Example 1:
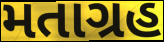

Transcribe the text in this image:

મતાગ્રહ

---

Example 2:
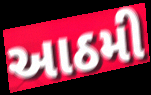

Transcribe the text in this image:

આઠમી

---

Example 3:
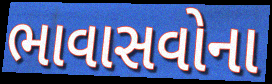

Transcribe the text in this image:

ભાવાસવોના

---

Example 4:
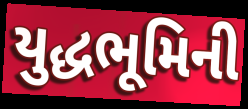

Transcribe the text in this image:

યુદ્ધભૂમિની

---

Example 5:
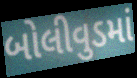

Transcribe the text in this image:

બોલીવુડમાં